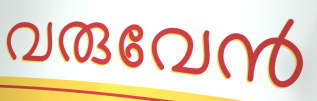
വരുവേൻ